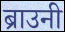
ब्राउनी